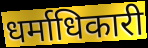
धर्माधिकारी